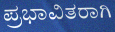
ಪ್ರಭಾವಿತರಾಗಿ